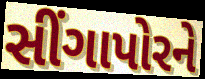
સીંગાપોરને